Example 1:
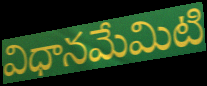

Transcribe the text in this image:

విధానమేమిటి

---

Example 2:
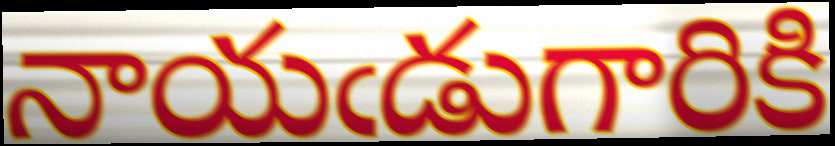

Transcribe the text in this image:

నాయఁడుగారికి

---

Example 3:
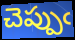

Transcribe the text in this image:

చెప్పుఁ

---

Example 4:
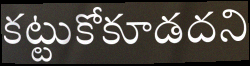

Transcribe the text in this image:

కట్టుకోకూడదని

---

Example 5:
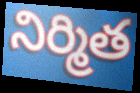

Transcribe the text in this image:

నిర్మిత